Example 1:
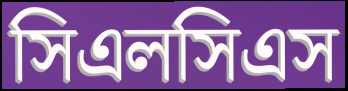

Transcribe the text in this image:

সিএলসিএস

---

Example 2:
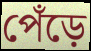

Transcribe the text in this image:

পেঁড়ে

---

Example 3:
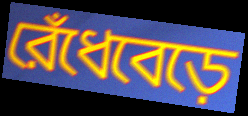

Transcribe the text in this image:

রেঁধেবেড়ে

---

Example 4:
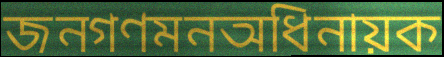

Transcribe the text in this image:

জনগণমনঅধিনায়ক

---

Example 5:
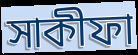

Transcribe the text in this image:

সাকীফা